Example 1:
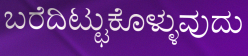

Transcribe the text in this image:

ಬರೆದಿಟ್ಟುಕೊಳ್ಳುವುದು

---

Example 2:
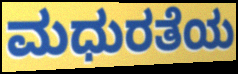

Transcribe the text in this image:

ಮಧುರತೆಯ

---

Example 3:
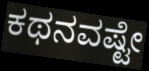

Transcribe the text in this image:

ಕಥನವಷ್ಟೇ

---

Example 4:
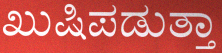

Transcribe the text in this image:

ಖುಷಿಪಡುತ್ತಾ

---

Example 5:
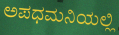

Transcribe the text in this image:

ಅಪಧಮನಿಯಲ್ಲಿ